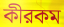
কীরকম